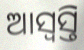
ଆସ୍ୱସ୍ତି